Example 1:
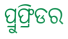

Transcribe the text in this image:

ପ୍ରୁଫ୍ରିଡର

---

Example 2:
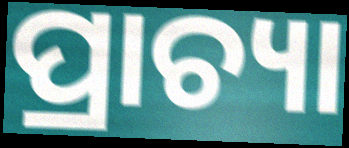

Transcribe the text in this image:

ପ୍ରାଚ୍ୟା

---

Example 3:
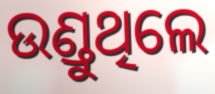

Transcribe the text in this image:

ଉଣ୍ଡୁଥିଲେ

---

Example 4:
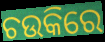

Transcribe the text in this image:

ଚଉକିରେ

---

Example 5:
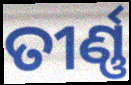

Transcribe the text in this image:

ତୀର୍ଣ୍ଣ